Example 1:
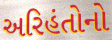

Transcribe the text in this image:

અરિહંતોનો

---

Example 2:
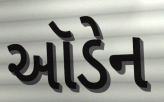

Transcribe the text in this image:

ઑડેન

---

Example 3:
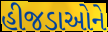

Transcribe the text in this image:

હીજડાઓને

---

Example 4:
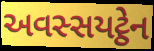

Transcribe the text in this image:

અવસ્સયટ્ઠેન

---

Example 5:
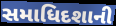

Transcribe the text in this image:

સમાધિદશાની